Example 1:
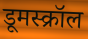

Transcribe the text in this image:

डूमस्क्रॉल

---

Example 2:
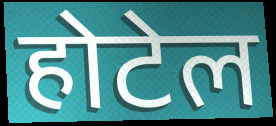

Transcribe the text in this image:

होटेल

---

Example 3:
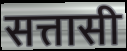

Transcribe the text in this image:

सत्तासी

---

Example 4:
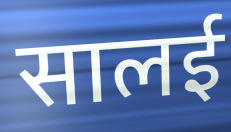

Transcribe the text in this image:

सालई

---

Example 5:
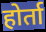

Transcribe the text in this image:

होर्ता